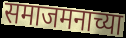
समाजमनाच्या